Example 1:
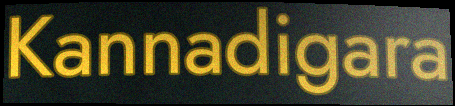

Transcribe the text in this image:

Kannadigara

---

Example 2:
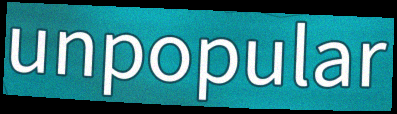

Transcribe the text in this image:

unpopular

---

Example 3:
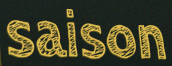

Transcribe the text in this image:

saison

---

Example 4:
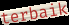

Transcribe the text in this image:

terbaik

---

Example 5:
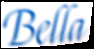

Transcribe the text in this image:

Bella